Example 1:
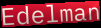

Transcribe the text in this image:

Edelman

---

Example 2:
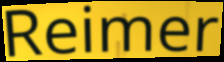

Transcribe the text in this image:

Reimer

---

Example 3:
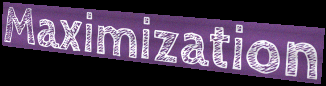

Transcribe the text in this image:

Maximization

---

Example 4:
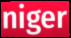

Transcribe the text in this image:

niger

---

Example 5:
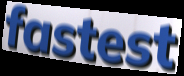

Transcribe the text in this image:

fastest